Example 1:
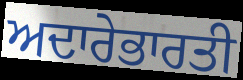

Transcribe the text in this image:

ਅਦਾਰੇਭਾਰਤੀ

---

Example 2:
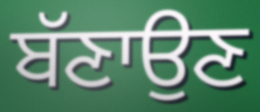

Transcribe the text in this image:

ਬੱਣਾਉਣ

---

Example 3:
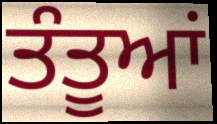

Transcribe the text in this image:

ਤੰਤੂਆਂ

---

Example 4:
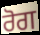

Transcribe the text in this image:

ਰੋਗ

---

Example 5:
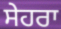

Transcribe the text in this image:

ਸੇਹਰਾ